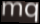
mq